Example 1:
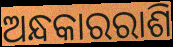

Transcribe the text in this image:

ଅନ୍ଧକାରରାଶି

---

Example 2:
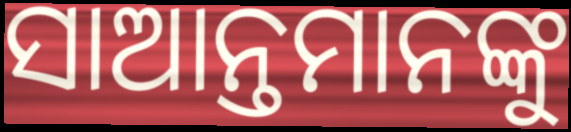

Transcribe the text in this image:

ସାଆନ୍ତମାନଙ୍କୁ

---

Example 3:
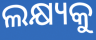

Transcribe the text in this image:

ଲକ୍ଷ୍ୟକୁ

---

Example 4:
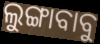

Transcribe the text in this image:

ଲୁଙ୍ଗାବାବୁ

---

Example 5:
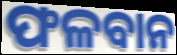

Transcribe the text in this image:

ଫଳବାନ